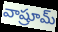
వాష్రూమ్